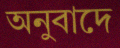
অনুবাদে